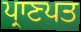
ਪ੍ਰਾਣਪਤ